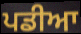
ਪਡੀਆ